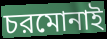
চরমোনাই